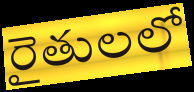
రైతులలో